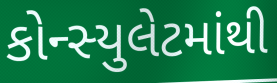
કોન્સ્યુલેટમાંથી